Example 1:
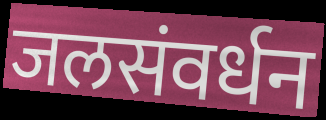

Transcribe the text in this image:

जलसंवर्धन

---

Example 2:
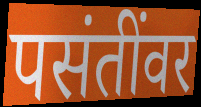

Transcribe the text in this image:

पसंतींवर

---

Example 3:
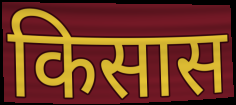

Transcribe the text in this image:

किसास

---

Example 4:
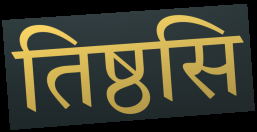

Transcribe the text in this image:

तिष्ठसि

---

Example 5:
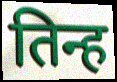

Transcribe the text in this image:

तिन्ह